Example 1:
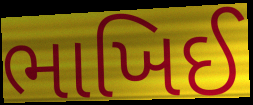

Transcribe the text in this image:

ભાખિઈ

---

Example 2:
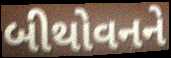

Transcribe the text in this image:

બીથોવનને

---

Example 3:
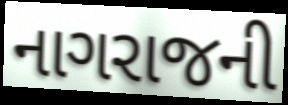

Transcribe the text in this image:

નાગરાજની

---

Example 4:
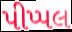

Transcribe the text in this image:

પીપ્પલ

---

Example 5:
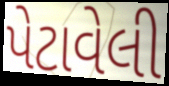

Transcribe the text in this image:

પેટાવેલી